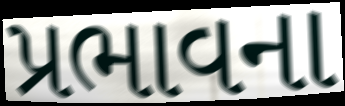
પ્રભાવના